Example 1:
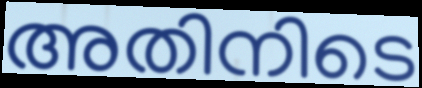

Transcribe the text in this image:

അതിനിടെ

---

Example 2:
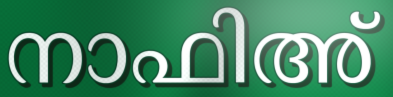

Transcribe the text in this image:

നാഫിഅ്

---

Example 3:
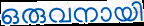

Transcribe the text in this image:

ഒരുവനായി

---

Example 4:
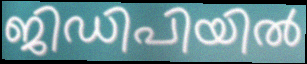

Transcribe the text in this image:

ജിഡിപിയിൽ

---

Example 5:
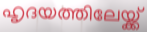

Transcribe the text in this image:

ഹൃദയത്തിലേയ്ക്ക്